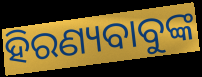
ହିରଣ୍ୟବାବୁଙ୍କ